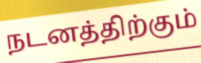
நடனத்திற்கும்